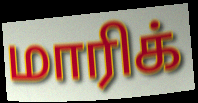
மாரிக்